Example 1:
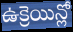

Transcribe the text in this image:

ఉక్రెయిన్లో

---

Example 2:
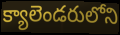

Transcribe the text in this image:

క్యాలెండరులోని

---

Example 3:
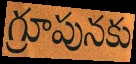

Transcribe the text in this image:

గ్రూపునకు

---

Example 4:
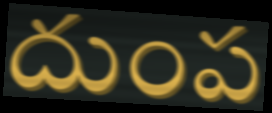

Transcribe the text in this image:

దుంప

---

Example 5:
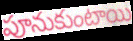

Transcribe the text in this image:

పూనుకుంటాయి